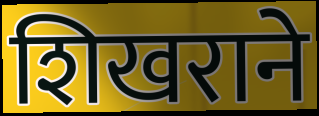
शिखराने